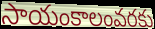
సాయంకాలంవరకు